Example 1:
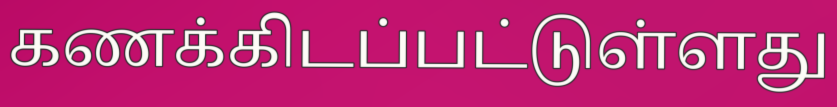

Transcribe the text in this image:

கணக்கிடப்பட்டுள்ளது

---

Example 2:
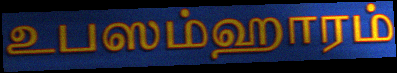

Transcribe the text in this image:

உபஸம்ஹாரம்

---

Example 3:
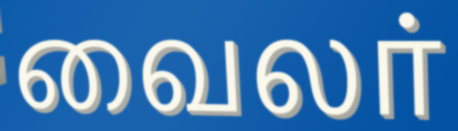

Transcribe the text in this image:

வைலர்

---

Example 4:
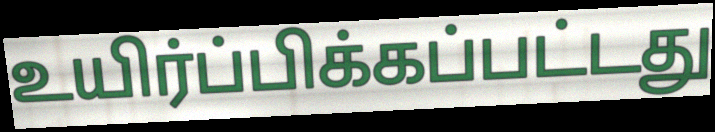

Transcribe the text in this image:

உயிர்ப்பிக்கப்பட்டது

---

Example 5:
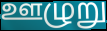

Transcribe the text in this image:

ஊழுறு